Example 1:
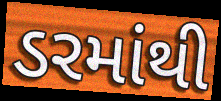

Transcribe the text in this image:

ડરમાંથી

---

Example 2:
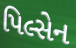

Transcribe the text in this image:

પિલ્સેન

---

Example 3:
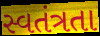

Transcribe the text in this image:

સ્વતંત્રતા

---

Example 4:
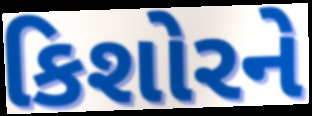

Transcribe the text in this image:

કિશોરને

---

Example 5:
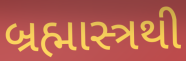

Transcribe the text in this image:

બ્રહ્માસ્ત્રથી